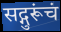
सद्गुरूंचं